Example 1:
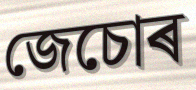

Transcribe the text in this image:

জেচোৰ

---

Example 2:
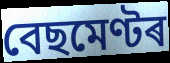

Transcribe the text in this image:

বেছমেণ্টৰ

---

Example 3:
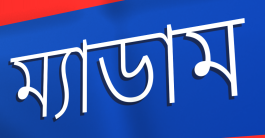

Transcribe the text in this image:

ম্যাডাম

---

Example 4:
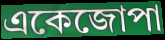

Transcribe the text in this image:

একেজোপা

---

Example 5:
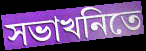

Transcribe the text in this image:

সভাখনিতে